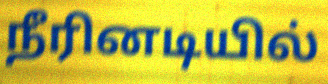
நீரினடியில்